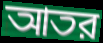
আতর